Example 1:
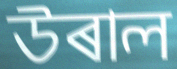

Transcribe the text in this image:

উৰাল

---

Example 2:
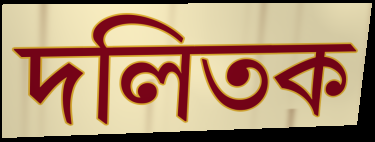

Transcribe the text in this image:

দলিতক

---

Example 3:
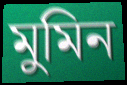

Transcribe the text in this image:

মুমিন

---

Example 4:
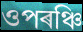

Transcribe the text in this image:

ওপৰঞ্চি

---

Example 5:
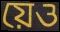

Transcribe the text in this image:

য়েও